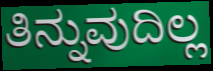
ತಿನ್ನುವುದಿಲ್ಲ